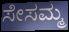
ಸೇಸಮ್ಮ